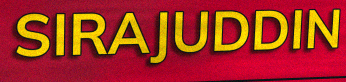
SIRAJUDDIN